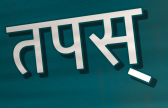
तपस्